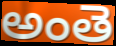
అంతె